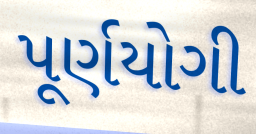
પૂર્ણયોગી